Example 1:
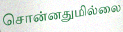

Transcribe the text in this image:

சொன்னதுமில்லை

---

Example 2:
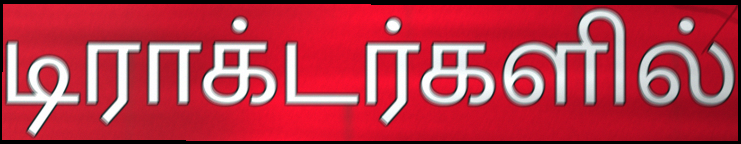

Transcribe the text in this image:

டிராக்டர்களில்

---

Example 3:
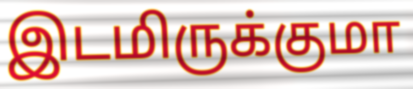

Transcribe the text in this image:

இடமிருக்குமா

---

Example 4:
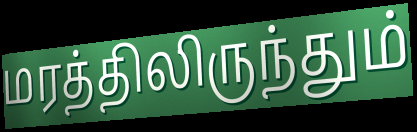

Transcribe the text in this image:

மரத்திலிருந்தும்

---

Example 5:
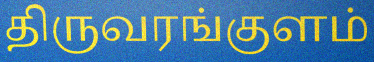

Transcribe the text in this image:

திருவரங்குளம்